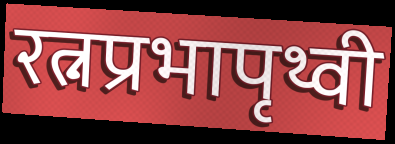
रत्नप्रभापृथ्वी